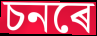
চনৰে